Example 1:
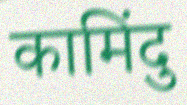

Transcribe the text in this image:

कामिंदु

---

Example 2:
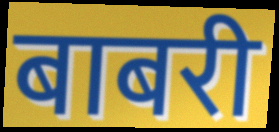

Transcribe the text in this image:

बाबरी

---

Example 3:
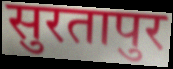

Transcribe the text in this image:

सुरतापुर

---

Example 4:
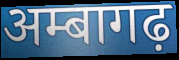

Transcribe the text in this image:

अम्बागढ़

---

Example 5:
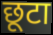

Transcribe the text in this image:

छूटा